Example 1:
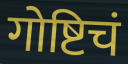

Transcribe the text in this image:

गोष्टिचं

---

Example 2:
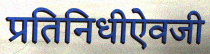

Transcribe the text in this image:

प्रतिनिधीऐवजी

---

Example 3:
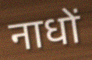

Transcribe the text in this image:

नाधों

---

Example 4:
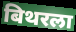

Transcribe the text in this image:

बिथरला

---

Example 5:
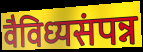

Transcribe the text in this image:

वैविध्यसंपन्न